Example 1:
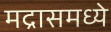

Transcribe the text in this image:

मद्रासमध्ये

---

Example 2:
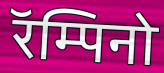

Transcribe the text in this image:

रॅम्पिनो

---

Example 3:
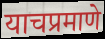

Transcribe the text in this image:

याचप्रमाणे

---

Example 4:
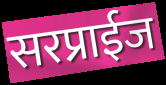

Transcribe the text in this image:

सरप्राईज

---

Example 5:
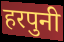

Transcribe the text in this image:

हरपुनी